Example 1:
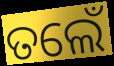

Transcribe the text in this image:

ତଲେଁ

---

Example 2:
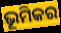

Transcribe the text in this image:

ଭୂମିକର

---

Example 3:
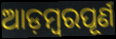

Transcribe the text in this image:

ଆଡ଼ମ୍ବରପୂର୍ଣ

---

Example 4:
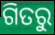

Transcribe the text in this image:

ଗିତରୁ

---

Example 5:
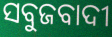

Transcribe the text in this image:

ସବୁଜବାଦୀ